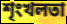
শৃংখলতা